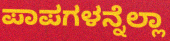
ಪಾಪಗಳನ್ನೆಲ್ಲಾ